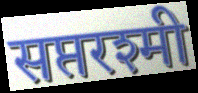
सप्तरश्मी